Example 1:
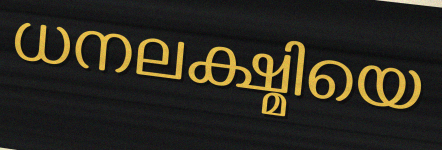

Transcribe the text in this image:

ധനലക്ഷ്മിയെ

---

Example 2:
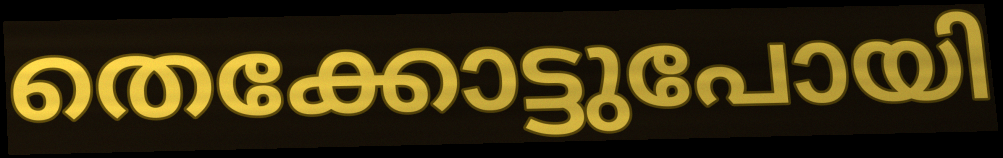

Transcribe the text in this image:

തെക്കോട്ടുപോയി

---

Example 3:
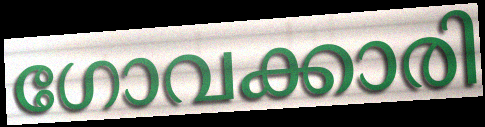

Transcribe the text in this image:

ഗോവക്കാരി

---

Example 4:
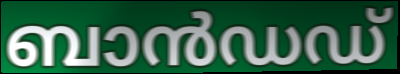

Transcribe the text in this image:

ബാൻഡഡ്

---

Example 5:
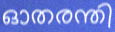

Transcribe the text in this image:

ഓതരന്തി